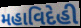
મહાવિદેહી